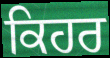
ਕਿਹਰ